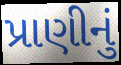
પ્રાણીનું